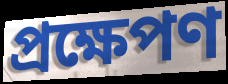
প্রক্ষেপণ